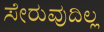
ಸೇರುವುದಿಲ್ಲ